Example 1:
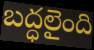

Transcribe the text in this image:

బద్ధలైంది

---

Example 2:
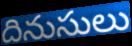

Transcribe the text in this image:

దినుసులు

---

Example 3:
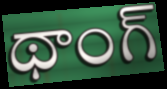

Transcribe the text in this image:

థాంగ్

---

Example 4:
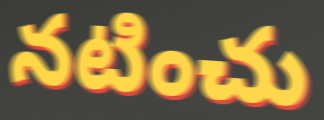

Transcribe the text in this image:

నటించు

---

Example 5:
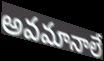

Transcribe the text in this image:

అవమానాలే